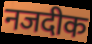
नजदीक